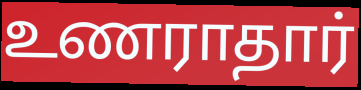
உணராதார்